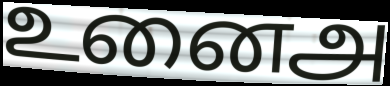
உனைஅ